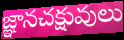
జ్ఞానచక్షువులు